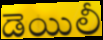
డెయిలీ